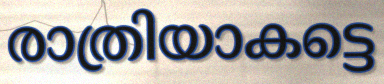
രാത്രിയാകട്ടെ